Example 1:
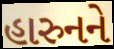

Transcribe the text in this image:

હારુનને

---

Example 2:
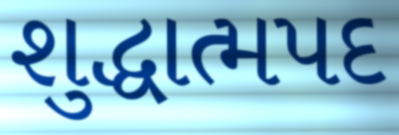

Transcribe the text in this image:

શુદ્ધાત્મપદ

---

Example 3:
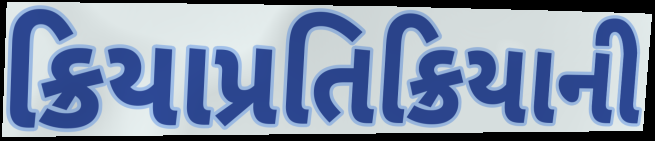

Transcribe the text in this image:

ક્રિયાપ્રતિક્રિયાની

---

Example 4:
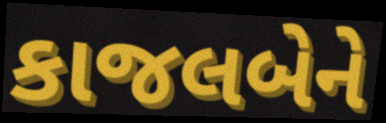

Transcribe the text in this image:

કાજલબેને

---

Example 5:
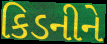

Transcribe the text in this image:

કિડનીને